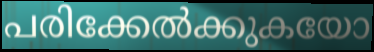
പരിക്കേൽക്കുകയോ